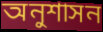
অনুশাসন